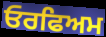
ਓਰਫਿਅਮ